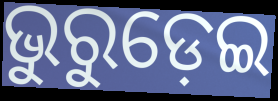
ଭୁରୁଡ଼େଇ